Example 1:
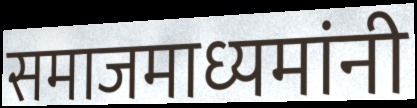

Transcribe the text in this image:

समाजमाध्यमांनी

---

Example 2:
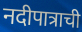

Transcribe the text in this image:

नदीपात्राची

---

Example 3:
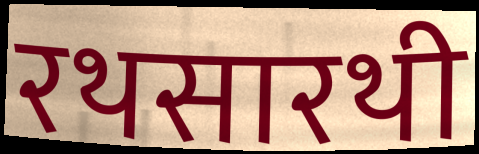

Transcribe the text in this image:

रथसारथी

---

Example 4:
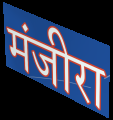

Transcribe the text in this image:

मंजीरा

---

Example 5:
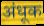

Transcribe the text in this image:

अंधूक